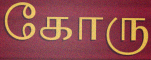
கோரு